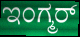
ಇಂಗ್ಮರ್